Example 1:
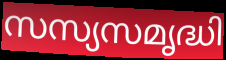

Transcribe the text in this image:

സസ്യസമൃദ്ധി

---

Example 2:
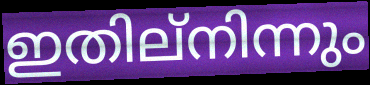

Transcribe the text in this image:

ഇതില്നിന്നും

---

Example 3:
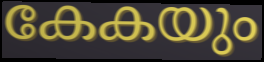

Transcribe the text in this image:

കേകയും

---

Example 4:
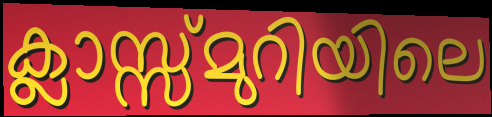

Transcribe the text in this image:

ക്ലാസ്സ്മുറിയിലെ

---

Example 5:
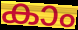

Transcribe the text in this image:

കാം